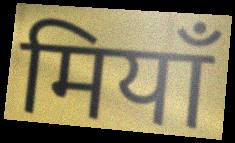
मियाँ